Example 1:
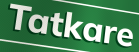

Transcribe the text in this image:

Tatkare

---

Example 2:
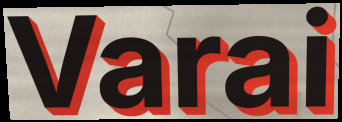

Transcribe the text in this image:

Varai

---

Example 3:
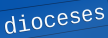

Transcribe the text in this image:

dioceses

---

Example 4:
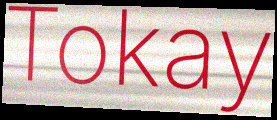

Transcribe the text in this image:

Tokay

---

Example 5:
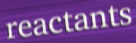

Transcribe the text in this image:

reactants